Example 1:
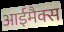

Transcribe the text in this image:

आईमैक्स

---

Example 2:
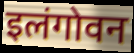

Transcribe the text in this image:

इलंगोवन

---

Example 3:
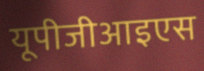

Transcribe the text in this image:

यूपीजीआइएस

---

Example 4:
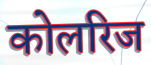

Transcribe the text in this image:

कोलरिज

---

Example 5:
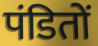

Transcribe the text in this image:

पंडितों